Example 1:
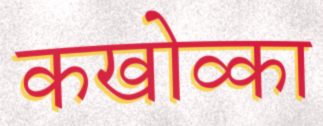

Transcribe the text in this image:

कखोव्का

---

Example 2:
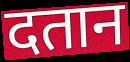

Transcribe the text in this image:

दतान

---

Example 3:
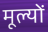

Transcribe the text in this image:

मूल्यों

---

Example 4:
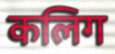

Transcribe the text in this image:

कलिग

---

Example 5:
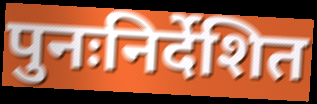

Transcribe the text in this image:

पुनःनिर्देशित